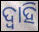
ଦ୍ୱାହି